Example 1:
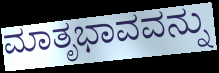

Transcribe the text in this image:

ಮಾತೃಭಾವವನ್ನು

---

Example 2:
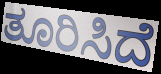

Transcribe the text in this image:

ತೂರಿಸಿದೆ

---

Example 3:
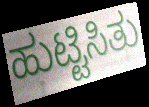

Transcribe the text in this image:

ಹುಟ್ಟಿಸಿತು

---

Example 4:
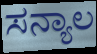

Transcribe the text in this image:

ಸನ್ಯಾಲ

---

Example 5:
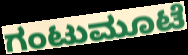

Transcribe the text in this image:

ಗಂಟುಮೂಟೆ